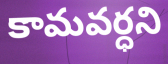
కామవర్ధని